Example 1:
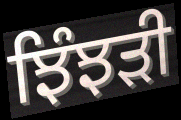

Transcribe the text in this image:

ਝਿੰਝੜੀ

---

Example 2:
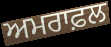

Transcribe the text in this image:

ਅਮਰਾਫ਼ਲ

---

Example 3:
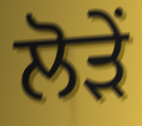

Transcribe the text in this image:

ਲੋੜੇਂ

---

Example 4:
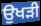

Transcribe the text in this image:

ਉਖੜੀ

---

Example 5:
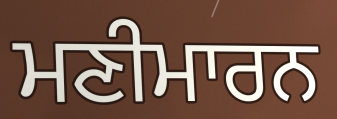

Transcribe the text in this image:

ਮਣੀਮਾਰਨ